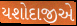
યશોદાજીએ